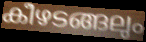
കീഴടങ്ങലും